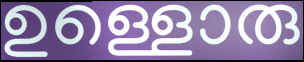
ഉള്ളൊരു